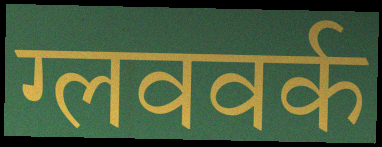
ग्लववर्क